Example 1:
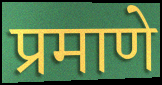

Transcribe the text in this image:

प्रमाणे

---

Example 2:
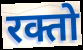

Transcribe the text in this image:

रक्तो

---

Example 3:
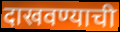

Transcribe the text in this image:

दाखवण्याची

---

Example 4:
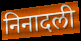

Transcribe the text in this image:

निनादली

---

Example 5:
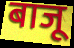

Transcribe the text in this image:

बाजू